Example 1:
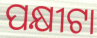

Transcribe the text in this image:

ପକ୍ଷୀଟା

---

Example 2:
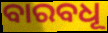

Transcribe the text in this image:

ବାରବଧୂ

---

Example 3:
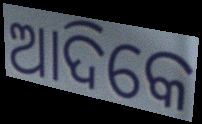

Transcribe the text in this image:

ଆଦିକେ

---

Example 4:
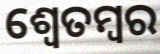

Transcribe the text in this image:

ଶ୍ଵେତମ୍ବର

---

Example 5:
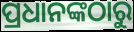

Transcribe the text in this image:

ପ୍ରଧାନଙ୍କଠାରୁ